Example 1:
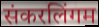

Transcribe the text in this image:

संकरलिंगम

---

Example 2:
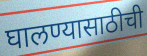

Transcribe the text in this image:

घालण्यासाठीची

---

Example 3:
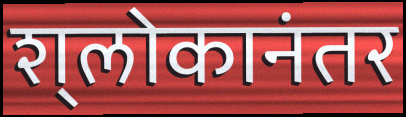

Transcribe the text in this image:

श्लोकानंतर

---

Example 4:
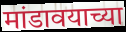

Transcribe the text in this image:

मांडावयाच्या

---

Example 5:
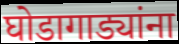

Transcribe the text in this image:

घोडागाड्यांना